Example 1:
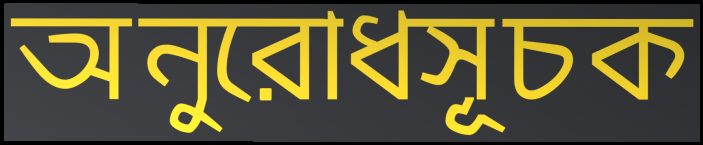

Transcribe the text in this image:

অনুরোধসূচক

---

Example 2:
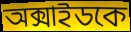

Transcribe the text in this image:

অক্সাইডকে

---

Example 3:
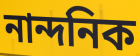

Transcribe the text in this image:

নান্দনিক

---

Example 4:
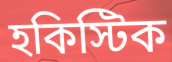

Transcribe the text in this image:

হকিস্টিক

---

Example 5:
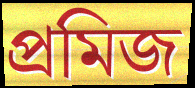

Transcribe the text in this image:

প্রমিজ